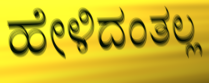
ಹೇಳಿದಂತಲ್ಲ